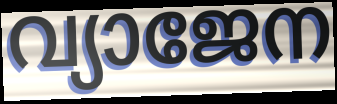
വ്യാജേന